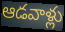
ఆడవాళ్లు